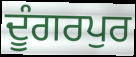
ਦੂੰਗਰਪੁਰ